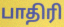
பாதிரி